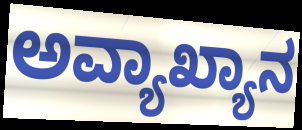
ಅವ್ಯಾಖ್ಯಾನ